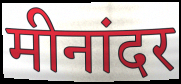
मीनांदर